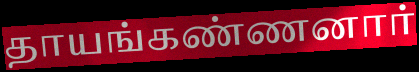
தாயங்கண்ணனார்